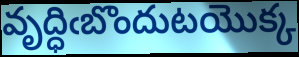
వృద్ధిఁబొందుటయొక్క